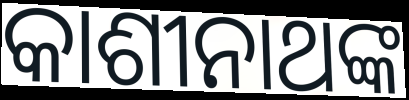
କାଶୀନାଥଙ୍କ